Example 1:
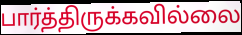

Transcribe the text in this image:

பார்த்திருக்கவில்லை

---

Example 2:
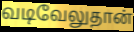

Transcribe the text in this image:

வடிவேலுதான்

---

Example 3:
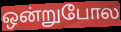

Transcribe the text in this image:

ஒன்றுபோல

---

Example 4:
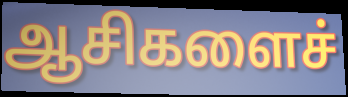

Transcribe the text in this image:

ஆசிகளைச்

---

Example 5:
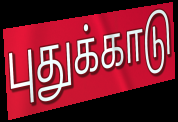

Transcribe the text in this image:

புதுக்காடு